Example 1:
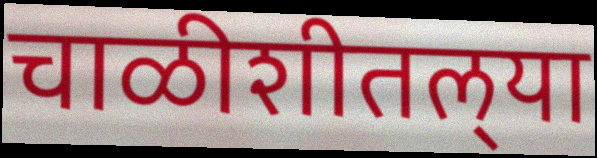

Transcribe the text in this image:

चाळीशीतल्या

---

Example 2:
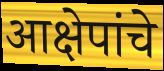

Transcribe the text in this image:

आक्षेपांचे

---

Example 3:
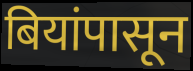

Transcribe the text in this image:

बियांपासून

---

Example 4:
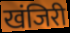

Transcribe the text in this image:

खंजिरी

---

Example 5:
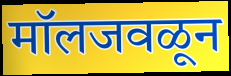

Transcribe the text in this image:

मॉलजवळून